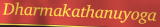
Dharmakathanuyoga